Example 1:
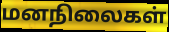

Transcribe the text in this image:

மனநிலைகள்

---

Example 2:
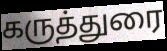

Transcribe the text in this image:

கருத்துரை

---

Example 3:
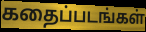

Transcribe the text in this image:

கதைப்படங்கள்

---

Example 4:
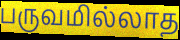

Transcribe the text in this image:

பருவமில்லாத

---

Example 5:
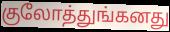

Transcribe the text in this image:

குலோத்துங்கனது